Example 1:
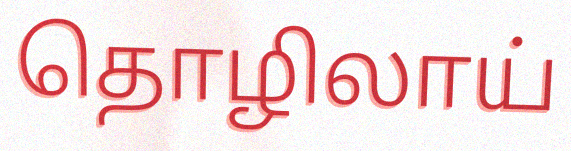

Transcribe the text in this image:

தொழிலாய்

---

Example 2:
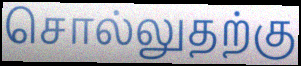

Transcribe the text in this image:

சொல்லுதற்கு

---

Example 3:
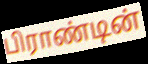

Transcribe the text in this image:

பிராண்டின்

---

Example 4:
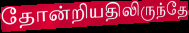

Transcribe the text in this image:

தோன்றியதிலிருந்தே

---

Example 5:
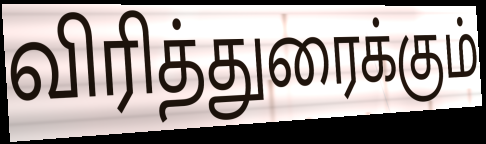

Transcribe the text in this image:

விரித்துரைக்கும்